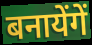
बनायेंगें